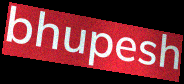
bhupesh